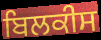
ਬਿਲਕੀਸ